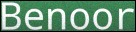
Benoor